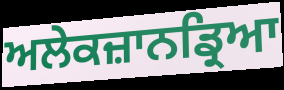
ਅਲੇਕਜ਼ਾਨਡ੍ਰਿਆ